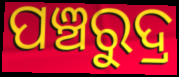
ପଞ୍ଚରୁଦ୍ର